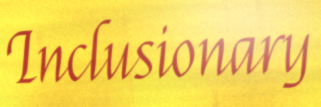
Inclusionary